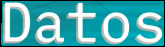
Datos